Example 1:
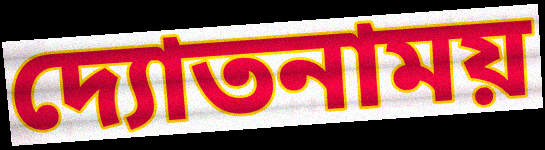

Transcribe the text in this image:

দ্যোতনাময়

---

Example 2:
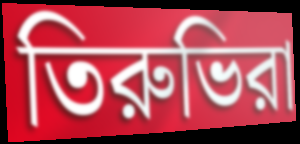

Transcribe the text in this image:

তিরুভিরা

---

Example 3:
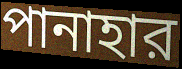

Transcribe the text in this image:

পানাহার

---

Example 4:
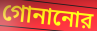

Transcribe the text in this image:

গোনানোর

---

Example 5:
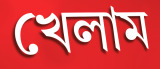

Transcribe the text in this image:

খেলাম